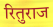
रितुराज